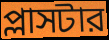
প্লাসটার